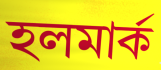
হলমার্ক